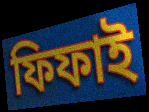
ফিফাই